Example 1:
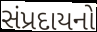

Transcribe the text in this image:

સંપ્રદાયનો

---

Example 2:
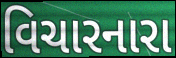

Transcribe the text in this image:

વિચારનારા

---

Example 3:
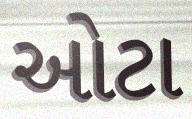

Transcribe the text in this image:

ઓટા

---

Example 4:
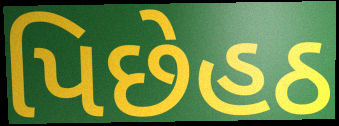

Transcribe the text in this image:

પિછેહઠ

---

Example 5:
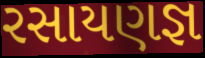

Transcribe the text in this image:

રસાયણજ્ઞ